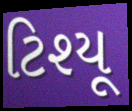
ટિશ્યૂ